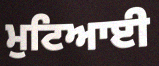
ਮੁਟਿਆਈ